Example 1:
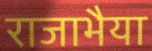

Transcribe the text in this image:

राजाभैया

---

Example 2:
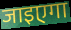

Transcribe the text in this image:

जाइएगा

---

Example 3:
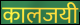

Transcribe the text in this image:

कालजयी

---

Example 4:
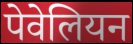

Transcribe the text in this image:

पेवेलियन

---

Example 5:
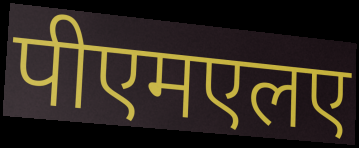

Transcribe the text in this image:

पीएमएलए